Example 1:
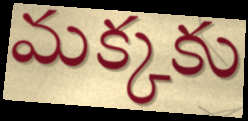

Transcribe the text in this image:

మక్కకు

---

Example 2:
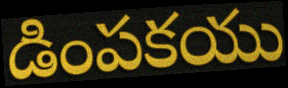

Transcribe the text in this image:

డింపకయు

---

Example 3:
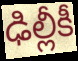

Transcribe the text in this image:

ఢిల్లీకీ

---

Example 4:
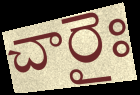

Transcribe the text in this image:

చారైః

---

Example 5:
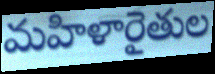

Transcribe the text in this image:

మహిళారైతుల